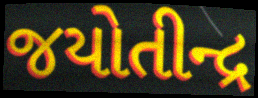
જયોતીન્દ્ર